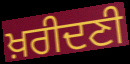
ਖ਼ਰੀਦਣੀ